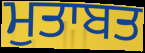
ਮੁਤਾਬਤ